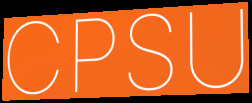
CPSU